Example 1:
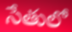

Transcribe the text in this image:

సేతులో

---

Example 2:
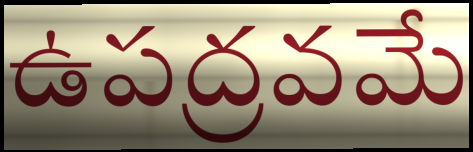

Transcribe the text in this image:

ఉపద్రవమే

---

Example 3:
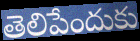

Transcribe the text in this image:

తెలిపేందుకు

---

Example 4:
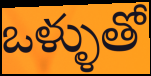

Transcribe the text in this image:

ఒళ్ళుతో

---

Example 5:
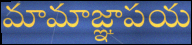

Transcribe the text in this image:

మామాజ్ఞాపయ